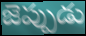
జెప్పుడు